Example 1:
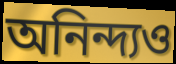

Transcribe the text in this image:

অনিন্দ্যও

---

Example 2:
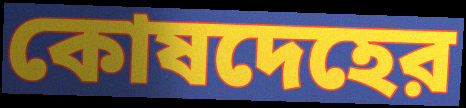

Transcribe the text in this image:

কোষদেহের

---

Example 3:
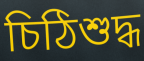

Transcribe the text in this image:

চিঠিশুদ্ধ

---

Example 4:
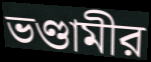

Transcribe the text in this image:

ভণ্ডামীর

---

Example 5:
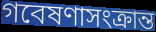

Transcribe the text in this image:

গবেষণাসংক্রান্ত